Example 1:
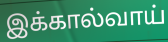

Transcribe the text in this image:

இக்கால்வாய்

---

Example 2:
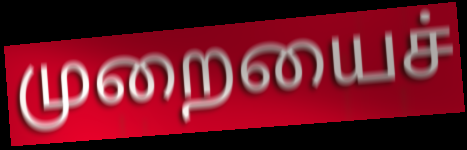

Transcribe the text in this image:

முறையைச்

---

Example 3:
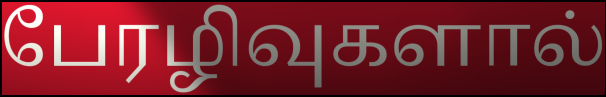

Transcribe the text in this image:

பேரழிவுகளால்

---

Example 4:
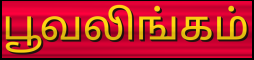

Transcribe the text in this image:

பூவலிங்கம்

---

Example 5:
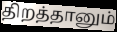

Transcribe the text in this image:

திறத்தானும்